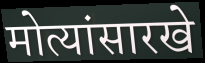
मोत्यांसारखे